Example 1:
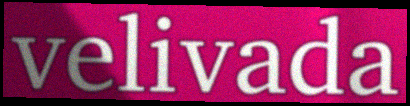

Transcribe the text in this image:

velivada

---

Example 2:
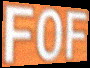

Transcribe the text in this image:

FOF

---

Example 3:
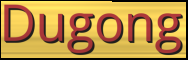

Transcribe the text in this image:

Dugong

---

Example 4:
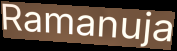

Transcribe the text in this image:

Ramanuja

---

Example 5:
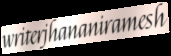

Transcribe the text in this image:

writerjhananiramesh